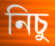
নিচু